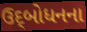
ઉદ્‌બોધનના